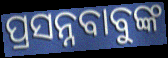
ପ୍ରସନ୍ନବାବୁଙ୍କ